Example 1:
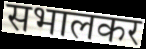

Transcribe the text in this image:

सभालकर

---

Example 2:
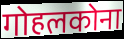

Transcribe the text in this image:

गोहलकोना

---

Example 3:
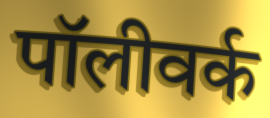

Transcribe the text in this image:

पॉलीवर्क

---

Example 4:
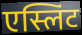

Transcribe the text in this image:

एस्लिंट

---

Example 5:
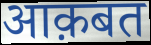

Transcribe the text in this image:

आक़बत